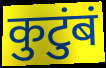
कुटुंबं